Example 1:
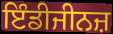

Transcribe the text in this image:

ਇੰਡੀਜੀਨਜ਼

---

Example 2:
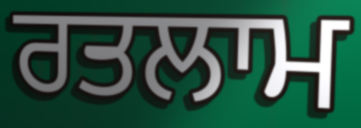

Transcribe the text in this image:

ਰਤਲਾਮ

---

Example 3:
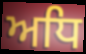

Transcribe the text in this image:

ਅਧਿ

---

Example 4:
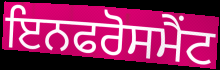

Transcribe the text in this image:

ਇਨਫਰੋਸਮੈਂਟ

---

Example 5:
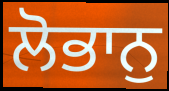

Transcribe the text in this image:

ਲੋਭਾਨੁ